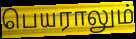
பெயராலும்